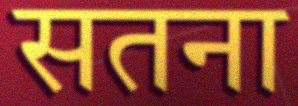
सतना